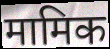
मामिक